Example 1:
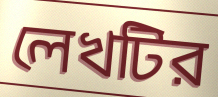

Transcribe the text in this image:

লেখটির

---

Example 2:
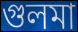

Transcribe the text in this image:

গুলমা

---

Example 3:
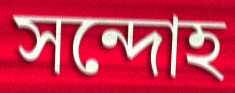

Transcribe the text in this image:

সন্দোহ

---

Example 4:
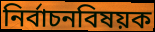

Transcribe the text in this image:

নির্বাচনবিষয়ক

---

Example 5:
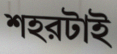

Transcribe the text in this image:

শহরটাই